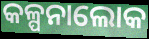
କଳ୍ପନାଲୋକ